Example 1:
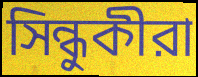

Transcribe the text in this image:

সিন্ধুকীরা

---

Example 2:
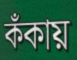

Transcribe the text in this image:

কঁকায়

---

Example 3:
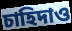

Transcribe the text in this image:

চাহিদাও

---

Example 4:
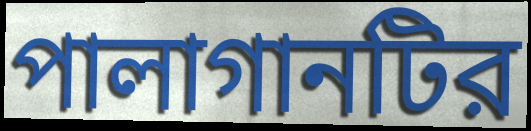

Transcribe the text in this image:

পালাগানটির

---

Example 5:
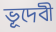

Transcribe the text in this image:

ভূদেবী